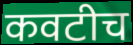
कवटीच